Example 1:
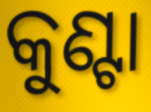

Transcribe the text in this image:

କୁଣ୍ଟା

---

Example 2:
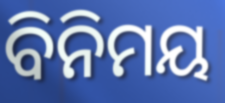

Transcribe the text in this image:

ବିନିମୟ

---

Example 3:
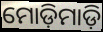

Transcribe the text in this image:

ମୋଡ଼ିମାଡ଼ି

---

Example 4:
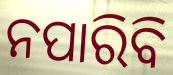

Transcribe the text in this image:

ନପାରିବି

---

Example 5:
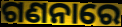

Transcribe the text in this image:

ଗଣନାରେ